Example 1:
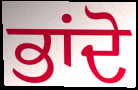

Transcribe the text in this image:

ਭਾਂਦੋ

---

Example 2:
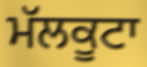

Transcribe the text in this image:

ਮੱਲਕੂਟਾ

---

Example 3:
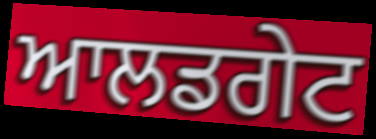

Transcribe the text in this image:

ਆਲਡਗੇਟ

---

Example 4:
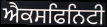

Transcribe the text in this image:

ਐਕਸਫਿਨਿਟੀ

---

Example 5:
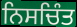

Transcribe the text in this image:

ਨਿਸਚਿੰਤ